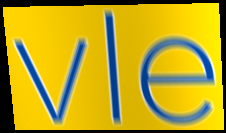
vle